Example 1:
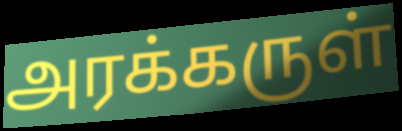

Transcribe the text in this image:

அரக்கருள்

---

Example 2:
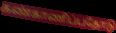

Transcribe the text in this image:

கண்காணிப்பதோடு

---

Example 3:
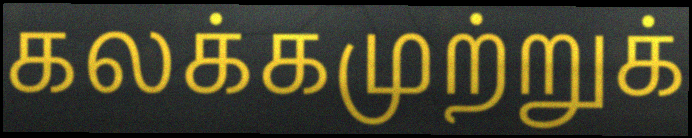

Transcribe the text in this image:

கலக்கமுற்றுக்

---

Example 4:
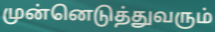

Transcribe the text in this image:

முன்னெடுத்துவரும்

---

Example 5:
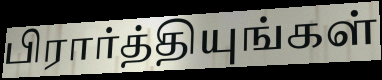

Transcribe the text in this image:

பிரார்த்தியுங்கள்